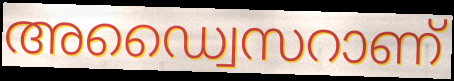
അഡ്വൈസറാണ്